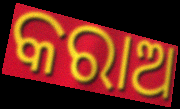
କରାଅ